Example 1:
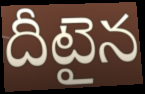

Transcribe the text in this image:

దీటైన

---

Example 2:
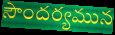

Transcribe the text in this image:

సౌందర్యమున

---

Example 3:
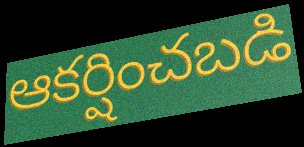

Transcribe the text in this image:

ఆకర్షించబడి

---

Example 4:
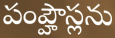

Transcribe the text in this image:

పంప్హౌస్లను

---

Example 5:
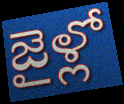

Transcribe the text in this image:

జైళ్లో